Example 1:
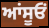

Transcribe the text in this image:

ਆਂਸੂਓਂ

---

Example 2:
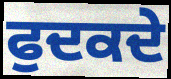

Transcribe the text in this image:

ਫੁਦਕਦੇ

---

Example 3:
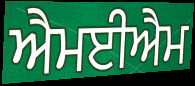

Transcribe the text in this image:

ਐਮਈਐਮ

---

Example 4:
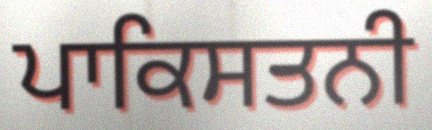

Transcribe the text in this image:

ਪਾਕਿਸਤਨੀ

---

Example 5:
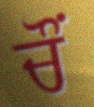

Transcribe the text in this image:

ਚੌਂ